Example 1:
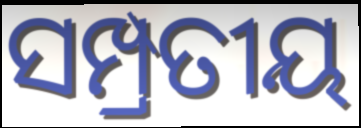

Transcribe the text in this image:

ସମ୍ପ୍ରତୀୟ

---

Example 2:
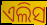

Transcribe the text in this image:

ଏଲିସ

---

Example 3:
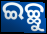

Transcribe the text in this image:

ଇଚ୍ଛୁ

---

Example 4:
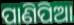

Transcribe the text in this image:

ପାଣିପିଆ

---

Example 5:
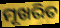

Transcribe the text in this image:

ମୂଖରିତ